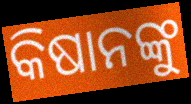
କିଷାନଙ୍କୁ